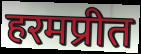
हरमप्रीत